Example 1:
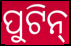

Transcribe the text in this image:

ପୁଟିନ୍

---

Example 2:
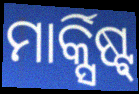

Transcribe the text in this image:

ମାର୍କ୍ସିଷ୍ଟ୍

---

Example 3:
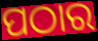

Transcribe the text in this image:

ପଠାର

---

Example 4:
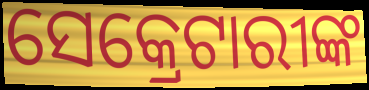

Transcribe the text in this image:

ସେକ୍ରେଟାରୀଙ୍କ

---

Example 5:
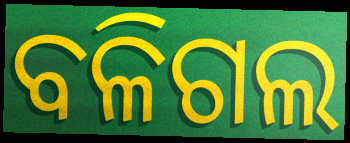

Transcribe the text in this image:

ବଳିଗଲ